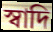
স্বাদি